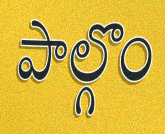
పాల్గొం